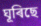
ঘূৰিছে